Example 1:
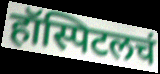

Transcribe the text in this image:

हॉस्पिटलचं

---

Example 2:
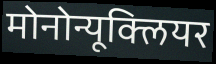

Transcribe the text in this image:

मोनोन्यूक्लियर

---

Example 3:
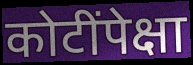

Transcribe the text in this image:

कोटींपेक्षा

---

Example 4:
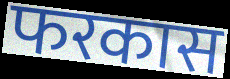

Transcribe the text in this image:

फरकास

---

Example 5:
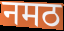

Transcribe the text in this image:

नमठ